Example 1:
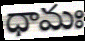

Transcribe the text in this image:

ధామః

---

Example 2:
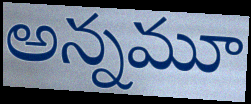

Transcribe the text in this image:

అన్నమూ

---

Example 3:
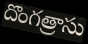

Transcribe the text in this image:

దొంగత్రాసు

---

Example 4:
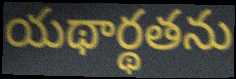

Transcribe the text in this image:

యథార్థతను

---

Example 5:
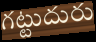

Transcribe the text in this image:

గట్టుదురు